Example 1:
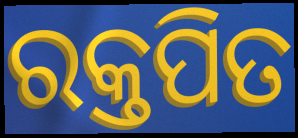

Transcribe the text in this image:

ରକ୍ତପିତ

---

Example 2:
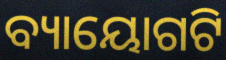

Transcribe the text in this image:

ବ୍ୟାୟୋଗଟି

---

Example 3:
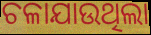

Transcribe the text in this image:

ଚଳାଯାଉଥିଲା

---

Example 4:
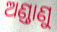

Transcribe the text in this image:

ଅଣ୍ଡାଣୁ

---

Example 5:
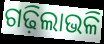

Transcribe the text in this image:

ଗଢ଼ିଲାଭଳି